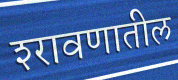
श्रावणातील